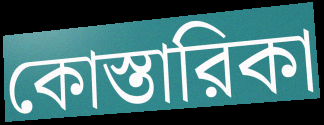
কোস্তারিকা